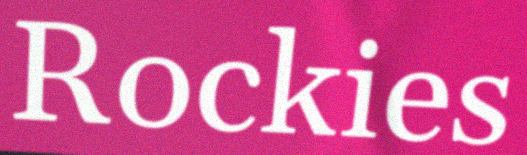
Rockies